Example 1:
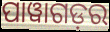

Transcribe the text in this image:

ପାୱାଗଡ଼ର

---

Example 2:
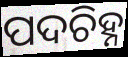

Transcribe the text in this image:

ପଦଚିହ୍ନ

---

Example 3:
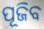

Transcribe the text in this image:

ପୂଜିବ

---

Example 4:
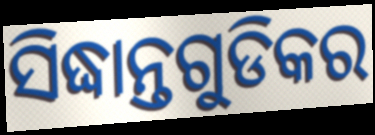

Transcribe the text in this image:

ସିଦ୍ଧାନ୍ତଗୁଡିକର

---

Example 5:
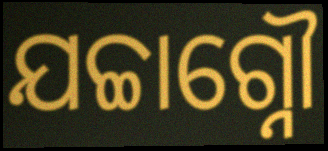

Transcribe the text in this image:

ଯଚ୍ଚାଗ୍ନୌ